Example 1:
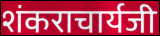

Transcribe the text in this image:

शंकराचार्यजी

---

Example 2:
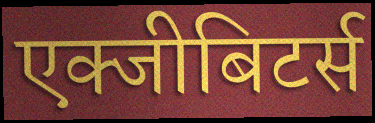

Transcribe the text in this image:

एक्जीबिटर्स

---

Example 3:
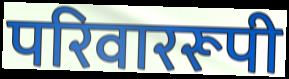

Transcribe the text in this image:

परिवाररूपी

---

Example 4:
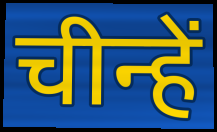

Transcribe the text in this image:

चीन्हें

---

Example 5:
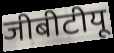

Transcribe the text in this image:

जीबीटीयू